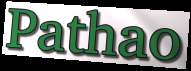
Pathao